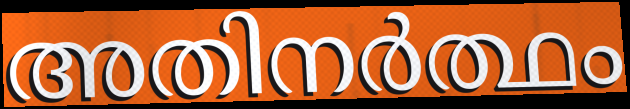
അതിനർത്ഥം